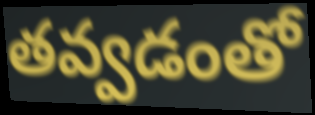
తవ్వడంతో